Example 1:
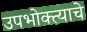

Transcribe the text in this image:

उपभोक्त्याचे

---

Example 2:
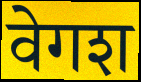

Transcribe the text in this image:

वेगश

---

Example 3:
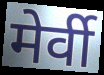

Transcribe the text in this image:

मेर्वी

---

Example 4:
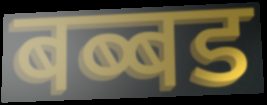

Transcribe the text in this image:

बब्बड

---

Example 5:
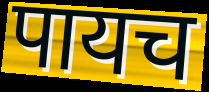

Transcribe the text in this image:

पायच